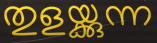
തുളയ്ക്കുന്ന